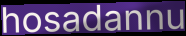
hosadannu